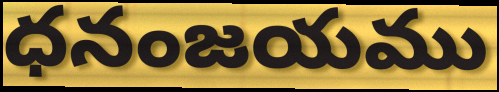
ధనంజయము